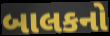
બાલકનો